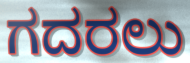
ಗದರಲು